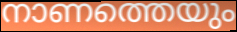
നാണത്തെയും